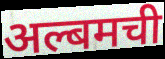
अल्बमची